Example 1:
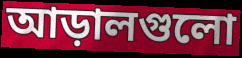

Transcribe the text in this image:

আড়ালগুলো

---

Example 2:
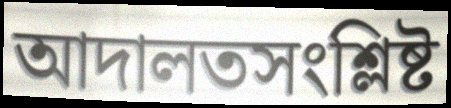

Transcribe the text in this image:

আদালতসংশ্লিষ্ট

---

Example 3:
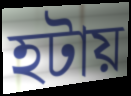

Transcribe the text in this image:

হটায়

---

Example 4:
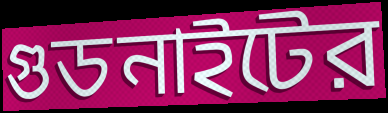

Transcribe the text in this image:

গুডনাইটের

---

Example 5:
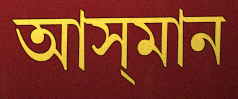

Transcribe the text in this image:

আস্‌মান